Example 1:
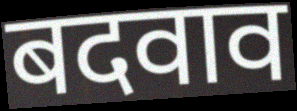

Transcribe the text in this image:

बदवाव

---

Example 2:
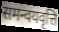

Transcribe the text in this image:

समन्वयवृत्ति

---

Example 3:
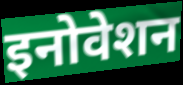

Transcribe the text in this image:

इनोवेशन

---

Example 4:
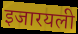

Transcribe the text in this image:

इजारयली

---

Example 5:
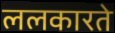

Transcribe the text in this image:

ललकारते